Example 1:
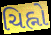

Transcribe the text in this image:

ચિહ્નો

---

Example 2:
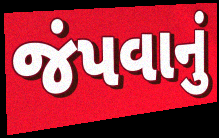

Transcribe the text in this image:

જંપવાનું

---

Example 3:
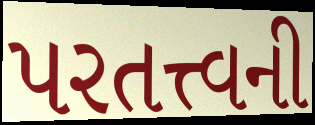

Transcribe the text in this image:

પરતત્ત્વની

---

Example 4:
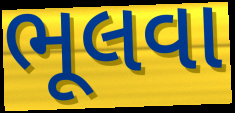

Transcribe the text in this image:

ભૂલવા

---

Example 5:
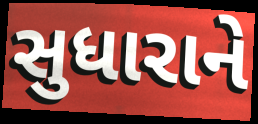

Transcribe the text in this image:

સુધારાને